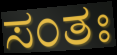
ಸಂತಃ